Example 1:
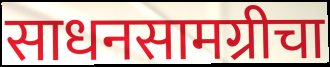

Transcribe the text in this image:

साधनसामग्रीचा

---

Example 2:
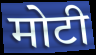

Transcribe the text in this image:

मोटी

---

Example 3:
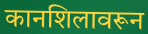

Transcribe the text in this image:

कानशिलावरून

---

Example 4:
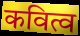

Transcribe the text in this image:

कवित्व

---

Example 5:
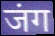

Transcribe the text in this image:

जंग